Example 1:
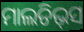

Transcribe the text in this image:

ମାଲଡିଭ୍‌ସ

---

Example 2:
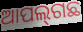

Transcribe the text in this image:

ଆପଲ୍‍ଗଛ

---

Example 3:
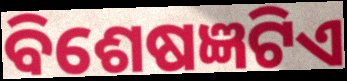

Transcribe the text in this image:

ବିଶେଷଜ୍ଞଟିଏ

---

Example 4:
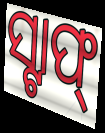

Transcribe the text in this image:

ସ୍ଟାଫ୍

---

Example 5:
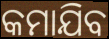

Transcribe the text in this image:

କମାଯିବ